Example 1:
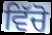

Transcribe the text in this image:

ਵਿੱਚੋ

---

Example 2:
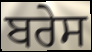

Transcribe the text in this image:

ਬਰੇਸ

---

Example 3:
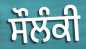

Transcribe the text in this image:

ਸੌਲੰਕੀ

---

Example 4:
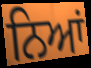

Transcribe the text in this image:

ਨਿਆਂ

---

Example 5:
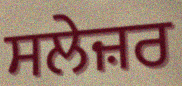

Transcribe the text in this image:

ਸਲੇਜ਼ਰ